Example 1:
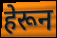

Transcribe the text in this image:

हेरून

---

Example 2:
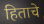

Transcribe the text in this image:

हिताचे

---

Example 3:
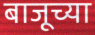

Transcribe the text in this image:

बाजूच्या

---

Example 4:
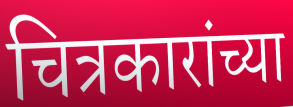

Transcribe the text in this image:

चित्रकारांच्या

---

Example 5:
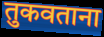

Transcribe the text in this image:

तुकवताना